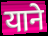
याने